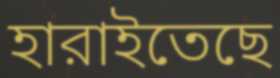
হারাইতেছে